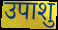
उपाशु